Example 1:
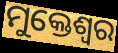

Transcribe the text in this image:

ମୁକ୍ତେଶ୍ଵର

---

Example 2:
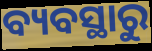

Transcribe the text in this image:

ବ୍ୟବସ୍ଥାରୁ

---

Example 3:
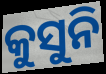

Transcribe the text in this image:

କୁସୁନି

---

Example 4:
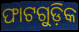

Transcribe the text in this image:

ଫାଟଗୁଡ଼ିକ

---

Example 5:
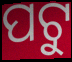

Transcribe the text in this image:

ପଟୁ